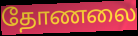
தோணலை